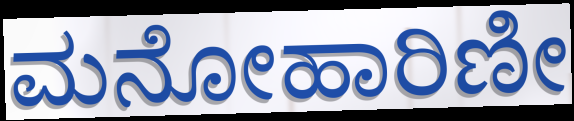
ಮನೋಹಾರಿಣೀ